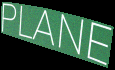
PLANE